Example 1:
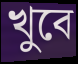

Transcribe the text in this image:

খুবে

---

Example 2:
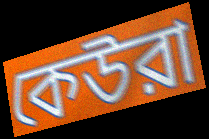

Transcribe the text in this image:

কেউরা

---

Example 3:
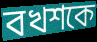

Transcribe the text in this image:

বখশকে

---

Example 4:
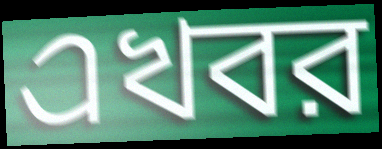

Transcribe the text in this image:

এখবর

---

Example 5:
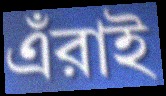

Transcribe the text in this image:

এঁরাই